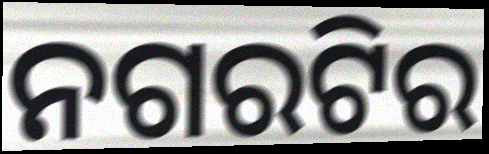
ନଗରଟିର